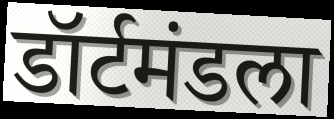
डॉर्टमंडला